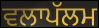
ਵਲਾਪੱਲਮ